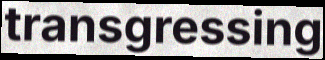
transgressing